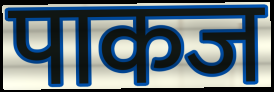
पाकज